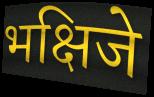
भक्षिजे